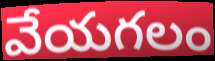
వేయగలం